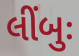
લીંબુઃ